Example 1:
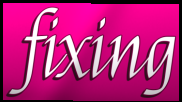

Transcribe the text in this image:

fixing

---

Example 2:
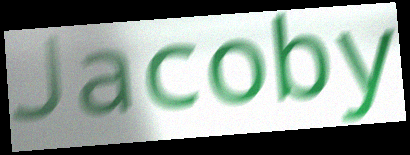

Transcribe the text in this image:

Jacoby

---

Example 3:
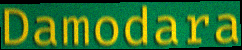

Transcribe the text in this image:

Damodara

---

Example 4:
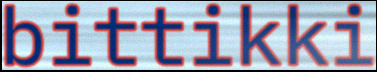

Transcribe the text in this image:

bittikki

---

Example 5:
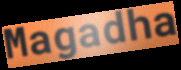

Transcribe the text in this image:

Magadha